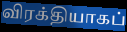
விரக்தியாகப்